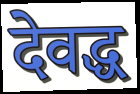
देवद्ध